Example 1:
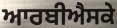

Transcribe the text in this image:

ਆਰਬੀਐਸਕੇ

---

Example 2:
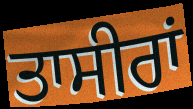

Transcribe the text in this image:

ਤਾਸੀਰਾਂ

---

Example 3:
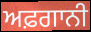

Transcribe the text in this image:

ਅਫ਼ਗਾਨੀ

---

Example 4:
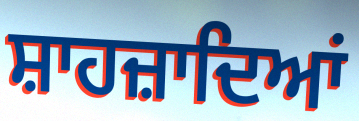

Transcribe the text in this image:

ਸ਼ਾਹਜ਼ਾਦਿਆਂ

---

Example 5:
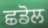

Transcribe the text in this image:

ਛਡੋਲ